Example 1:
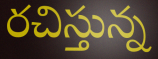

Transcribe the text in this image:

రచిస్తున్న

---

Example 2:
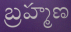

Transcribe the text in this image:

బ్రహ్మణ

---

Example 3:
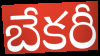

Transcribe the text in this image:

బేకరీ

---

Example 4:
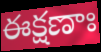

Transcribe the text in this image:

ఈక్షణాః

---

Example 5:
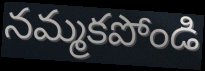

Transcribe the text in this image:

నమ్మకపోండి